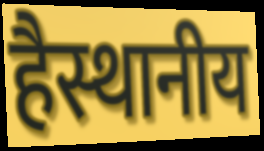
हैस्थानीय